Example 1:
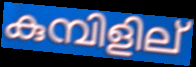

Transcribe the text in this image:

കുമ്പിളില്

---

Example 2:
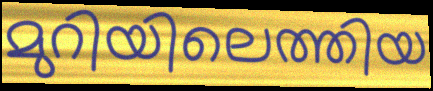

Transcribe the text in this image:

മുറിയിലെത്തിയ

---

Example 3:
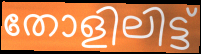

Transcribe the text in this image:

തോളിലിട്ട്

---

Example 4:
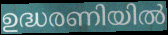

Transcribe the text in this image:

ഉദ്ധരണിയിൽ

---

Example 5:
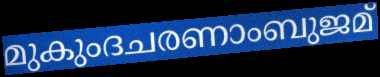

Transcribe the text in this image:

മുകുംദചരണാംബുജമ്